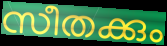
സീതക്കും